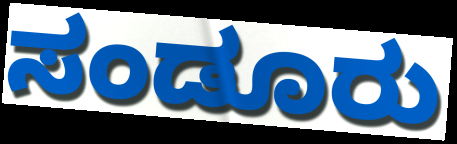
ಸಂಡೂರು